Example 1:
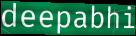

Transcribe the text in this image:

deepabhi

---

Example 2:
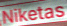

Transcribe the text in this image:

Niketas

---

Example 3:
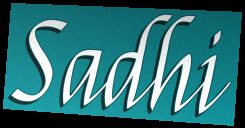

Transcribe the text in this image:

Sadhi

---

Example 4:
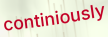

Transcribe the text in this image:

continiously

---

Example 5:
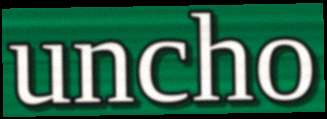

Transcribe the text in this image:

uncho